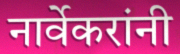
नार्वेकरांनी